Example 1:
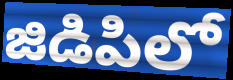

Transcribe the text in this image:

జిడిపిలో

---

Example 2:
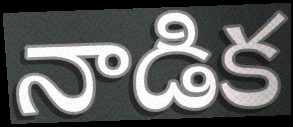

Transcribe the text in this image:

నాడిక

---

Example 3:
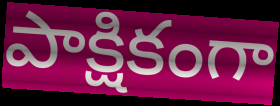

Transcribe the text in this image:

పాక్షికంగా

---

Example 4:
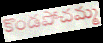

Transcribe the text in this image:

కొండపోచమ్మ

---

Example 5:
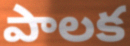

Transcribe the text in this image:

పాలక